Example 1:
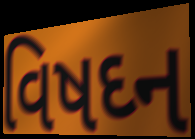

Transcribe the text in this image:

વિષઘ્ન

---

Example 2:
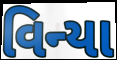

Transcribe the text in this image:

વિન્યા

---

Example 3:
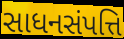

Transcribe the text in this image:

સાધનસંપત્તિ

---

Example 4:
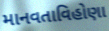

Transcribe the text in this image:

માનવતાવિહોણા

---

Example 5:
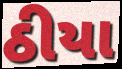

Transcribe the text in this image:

ઠીયા